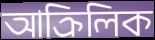
আক্ৰিলিক